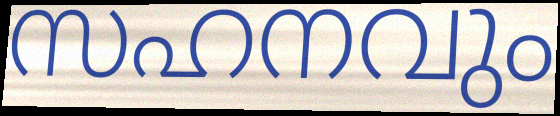
സഹനവും